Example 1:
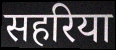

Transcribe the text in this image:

सहरिया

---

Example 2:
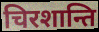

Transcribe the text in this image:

चिरशान्ति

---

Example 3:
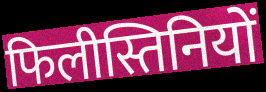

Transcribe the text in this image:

फिलीस्तिनियों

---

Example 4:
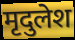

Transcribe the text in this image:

मृदुलेश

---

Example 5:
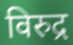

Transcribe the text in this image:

विरुद्र